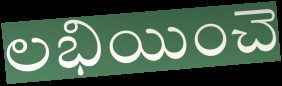
లభియించె